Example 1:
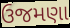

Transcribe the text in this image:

ઉજમણા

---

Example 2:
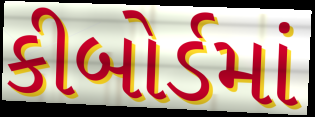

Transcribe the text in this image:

કીબોર્ડમાં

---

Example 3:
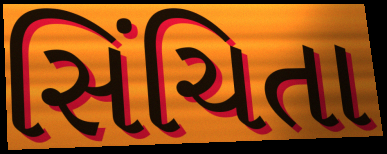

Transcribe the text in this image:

સિંચિતા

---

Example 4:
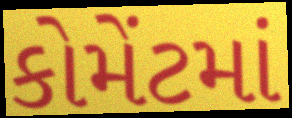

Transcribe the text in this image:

કોમેંટમાં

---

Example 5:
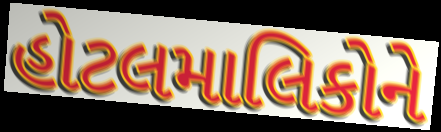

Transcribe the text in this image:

હોટલમાલિકોને